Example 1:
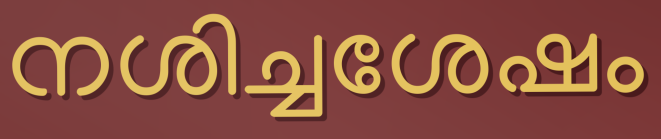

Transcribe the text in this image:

നശിച്ചശേഷം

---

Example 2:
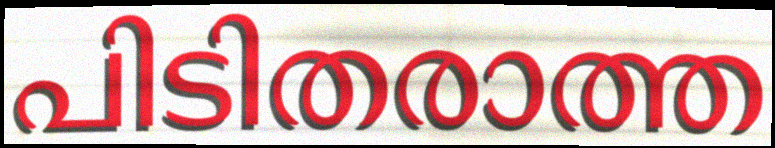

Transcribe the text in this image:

പിടിതരാത്ത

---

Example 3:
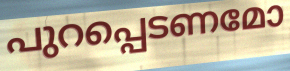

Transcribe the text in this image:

പുറപ്പെടണമോ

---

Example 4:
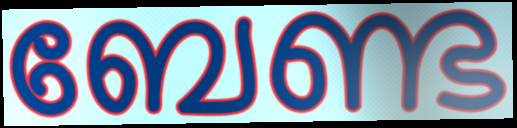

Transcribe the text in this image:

ബേണ്ട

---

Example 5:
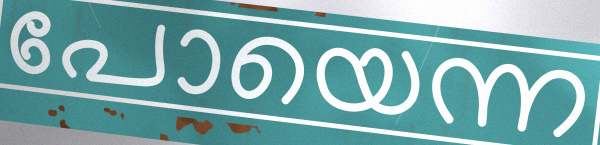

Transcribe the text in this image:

പോയെന്ന